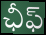
ఛీఫ్